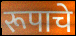
रूपाचे